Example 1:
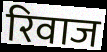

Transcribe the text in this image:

रिवाज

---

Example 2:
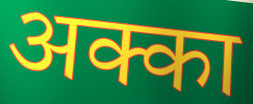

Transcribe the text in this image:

अक्का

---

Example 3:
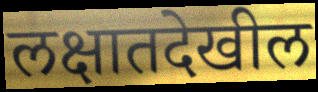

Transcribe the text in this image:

लक्षातदेखील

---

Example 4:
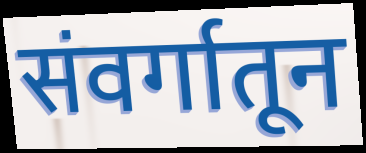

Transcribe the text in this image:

संवर्गातून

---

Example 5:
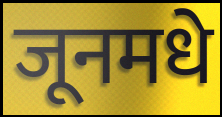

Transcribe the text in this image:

जूनमधे